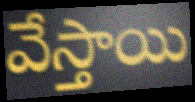
వేస్తాయి